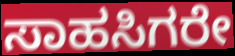
ಸಾಹಸಿಗರೇ